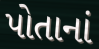
પોતાનાં